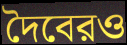
দৈবেরও